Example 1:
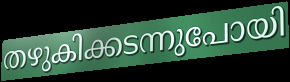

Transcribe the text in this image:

തഴുകിക്കടന്നുപോയി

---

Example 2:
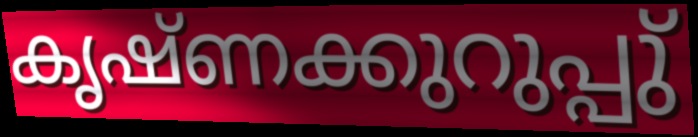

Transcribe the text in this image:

കൃഷ്ണക്കുറുപ്പു്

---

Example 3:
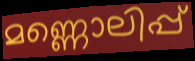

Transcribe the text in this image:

മണ്ണൊലിപ്പ്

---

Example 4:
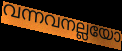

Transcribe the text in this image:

വന്നവനല്ലയോ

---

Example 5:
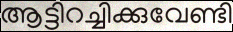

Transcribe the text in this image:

ആട്ടിറച്ചിക്കുവേണ്ടി